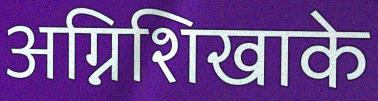
अग्निशिखाके